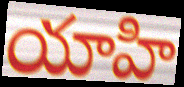
యాహి